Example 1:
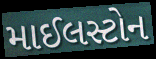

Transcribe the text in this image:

માઈલસ્ટોન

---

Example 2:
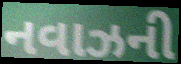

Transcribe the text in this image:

નવાઝની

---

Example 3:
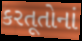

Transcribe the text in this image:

કરતૂતોનાં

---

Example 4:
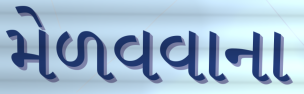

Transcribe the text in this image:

મેળવવાના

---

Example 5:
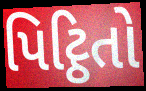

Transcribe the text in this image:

પિટ્ઠિતો